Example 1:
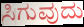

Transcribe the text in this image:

ಸಿಗುವುದು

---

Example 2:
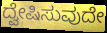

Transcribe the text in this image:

ದ್ವೇಷಿಸುವುದೇ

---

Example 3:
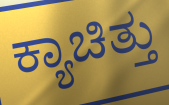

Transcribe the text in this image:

ಕ್ಯಾಚಿತ್ತು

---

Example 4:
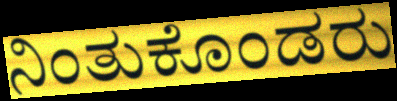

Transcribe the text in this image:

ನಿಂತುಕೊಂಡರು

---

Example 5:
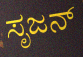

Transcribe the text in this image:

ಸೃಜನ್